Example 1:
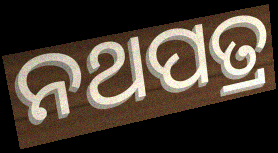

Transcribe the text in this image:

ନଥପତ୍ର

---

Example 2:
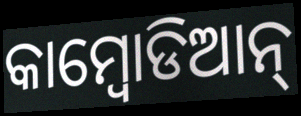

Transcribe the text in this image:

କାମ୍ବୋଡିଆନ୍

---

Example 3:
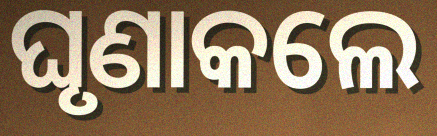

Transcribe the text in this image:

ଘୃଣାକଲେ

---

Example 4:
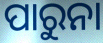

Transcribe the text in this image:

ପାରୁନା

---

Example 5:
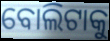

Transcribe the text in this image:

ବୋଲିଟାକୁ